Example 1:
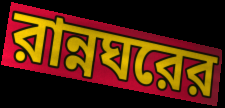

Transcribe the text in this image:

রান্নঘরের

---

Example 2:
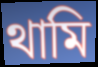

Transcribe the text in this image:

থামি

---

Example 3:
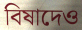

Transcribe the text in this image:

বিষাদেও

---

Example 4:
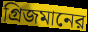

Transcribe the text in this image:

গ্রিজমানের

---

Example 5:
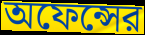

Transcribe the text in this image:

অফেন্সের